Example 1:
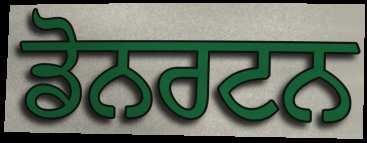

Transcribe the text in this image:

ਡੋਨਰਟਨ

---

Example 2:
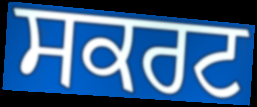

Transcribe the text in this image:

ਸਕਰਟ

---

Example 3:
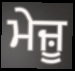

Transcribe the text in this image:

ਮੇਜ਼ੂ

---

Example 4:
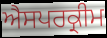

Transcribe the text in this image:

ਐਸਪਰਕ੍ਰੀਮ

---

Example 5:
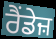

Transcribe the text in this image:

ਰੈਂਡੇਜ਼